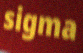
sigma